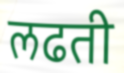
लढती